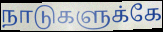
நாடுகளுக்கே